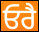
ਓਰੈ